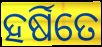
ହର୍ଷିତେ